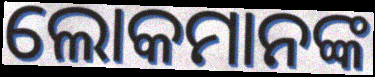
ଲୋକମାନଙ୍କ